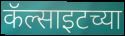
कॅल्साइटच्या